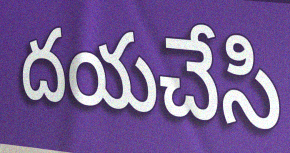
దయచేసి